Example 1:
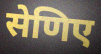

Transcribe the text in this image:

सेणिए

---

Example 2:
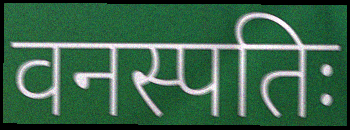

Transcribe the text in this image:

वनस्पतिः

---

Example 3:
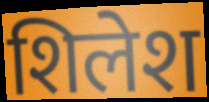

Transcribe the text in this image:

शिलेश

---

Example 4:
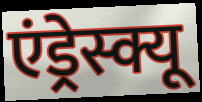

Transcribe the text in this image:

एंड्रेस्क्यू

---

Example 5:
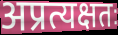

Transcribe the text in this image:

अप्रत्यक्षतः